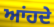
ਆਂਹਦੇ